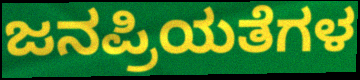
ಜನಪ್ರಿಯತೆಗಳ